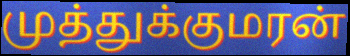
முத்துக்குமரன்